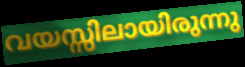
വയസ്സിലായിരുന്നു